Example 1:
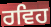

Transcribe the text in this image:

ਰਵਿਹ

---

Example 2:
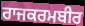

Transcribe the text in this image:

ਰਾਜਕਰਮਬੀਰ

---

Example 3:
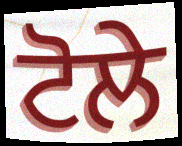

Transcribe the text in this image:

ਟੋਲੇ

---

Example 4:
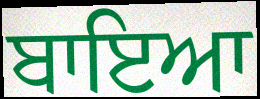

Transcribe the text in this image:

ਬਾਇਆ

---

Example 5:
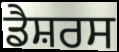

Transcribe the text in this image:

ਡੈਸ਼ਰਸ